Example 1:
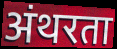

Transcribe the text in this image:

अंथरता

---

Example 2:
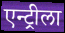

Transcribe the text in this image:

एन्ट्रीला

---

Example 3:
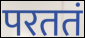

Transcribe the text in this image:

परततं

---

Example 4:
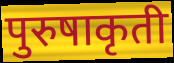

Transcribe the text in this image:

पुरुषाकृती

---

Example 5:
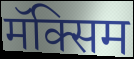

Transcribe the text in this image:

मॅक्सिम